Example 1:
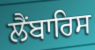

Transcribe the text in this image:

ਲੈਂਬਾਰਿਸ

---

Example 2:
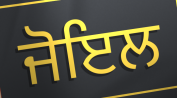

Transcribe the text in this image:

ਜੋਇਲ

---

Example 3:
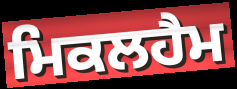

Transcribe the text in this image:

ਮਿਕਲਹੈਮ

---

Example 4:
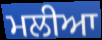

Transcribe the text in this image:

ਮਲੀਆ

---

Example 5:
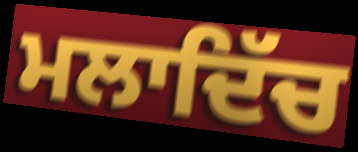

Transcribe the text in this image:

ਮਲਾਦਿੱਚ